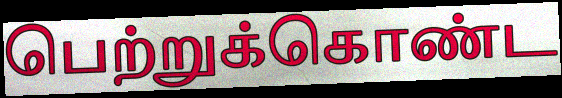
பெற்றுக்கொண்ட